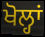
ਖੋਲ੍ਹਾਂ